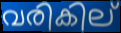
വരികില്